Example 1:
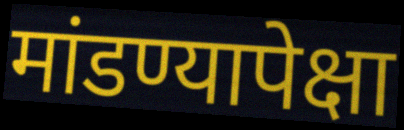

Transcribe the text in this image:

मांडण्यापेक्षा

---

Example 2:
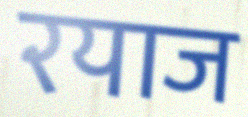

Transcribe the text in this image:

रयाज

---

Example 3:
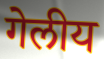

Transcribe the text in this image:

गेलीय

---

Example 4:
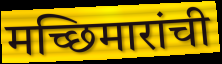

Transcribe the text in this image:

मच्छिमारांची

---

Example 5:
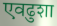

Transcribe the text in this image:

एवढुशा